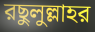
রছুলুল্লাহর